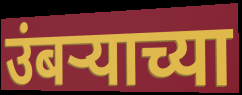
उंबऱ्याच्या